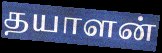
தயாளன்